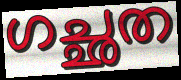
ഗച്ഛത